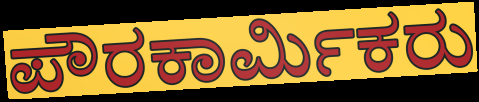
ಪೌರಕಾರ್ಮಿಕರು